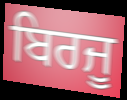
ਬਿਰਜੂ